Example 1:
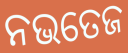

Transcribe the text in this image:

ନଭତେଜ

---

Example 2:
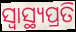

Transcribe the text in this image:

ସ୍ବାସ୍ଥ୍ୟପ୍ରତି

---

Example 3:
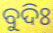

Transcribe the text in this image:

ବୁଦିଃ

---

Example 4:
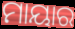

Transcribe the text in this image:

ମାୟାର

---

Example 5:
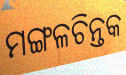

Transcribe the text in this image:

ମଙ୍ଗଳଚିନ୍ତକ